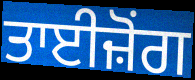
ਤਾਈਜ਼ੋਂਗ